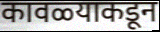
कावळ्याकडून